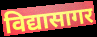
विद्यासागर